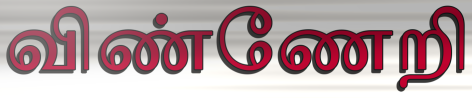
விண்ணேறி